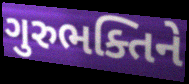
ગુરુભક્તિને